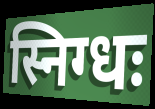
स्निग्धः